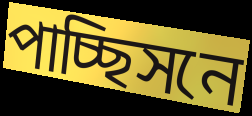
পাচ্ছিসনে